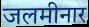
जलमीनार